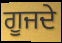
ਗੂਜਦੇ